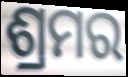
ଶ୍ରମର